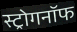
स्ट्रोगनॉफ